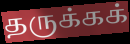
தருக்கக்